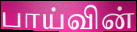
பாய்வின்